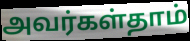
அவர்கள்தாம்